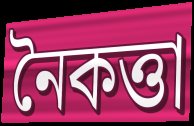
নৈকত্তা